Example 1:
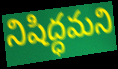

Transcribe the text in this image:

నిషిద్ధమని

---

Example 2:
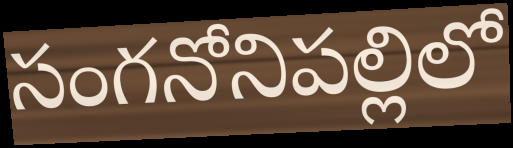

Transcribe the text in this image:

సంగనోనిపల్లిలో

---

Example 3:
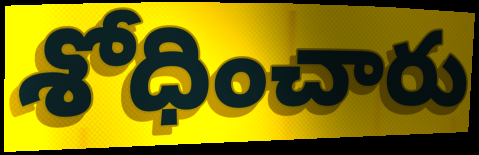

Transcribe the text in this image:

శోధించారు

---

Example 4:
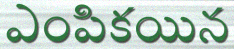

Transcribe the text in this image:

ఎంపికయిన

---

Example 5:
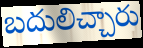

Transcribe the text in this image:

బదులిచ్చారు